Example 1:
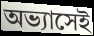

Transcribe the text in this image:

অভ্যাসেই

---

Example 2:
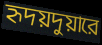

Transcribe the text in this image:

হৃদয়দুয়ারে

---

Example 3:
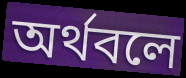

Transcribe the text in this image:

অর্থবলে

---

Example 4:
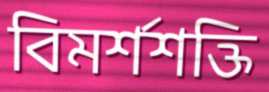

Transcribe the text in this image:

বিমর্শশক্তি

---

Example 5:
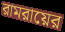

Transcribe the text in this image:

রামরায়ের